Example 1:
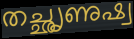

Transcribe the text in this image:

തച്ഛൃണുഷ്വ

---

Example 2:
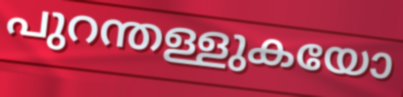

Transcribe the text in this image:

പുറന്തള്ളുകയോ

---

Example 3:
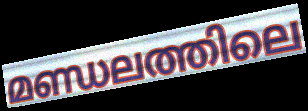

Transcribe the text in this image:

മണ്ഡലത്തിലെ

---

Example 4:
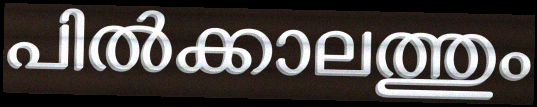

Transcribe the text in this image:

പിൽക്കാലത്തും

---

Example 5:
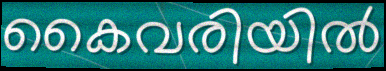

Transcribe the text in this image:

കൈവരിയിൽ